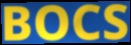
BOCS